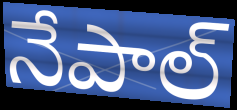
నేపాల్